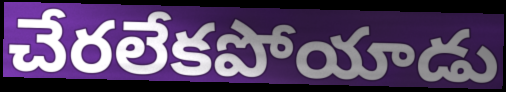
చేరలేకపోయాడు